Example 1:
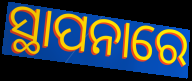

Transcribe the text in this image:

ସ୍ଥାପନାରେ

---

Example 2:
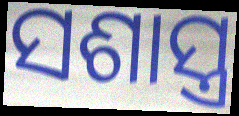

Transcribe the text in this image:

ସଶାସ୍ତ୍ର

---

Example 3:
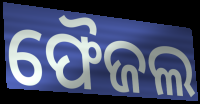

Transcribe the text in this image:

ଫୈଜଲ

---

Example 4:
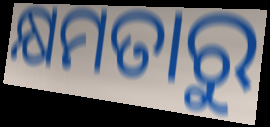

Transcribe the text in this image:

କ୍ଷମତାରୁ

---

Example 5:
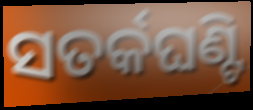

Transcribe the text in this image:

ସତର୍କଘଣ୍ଟି